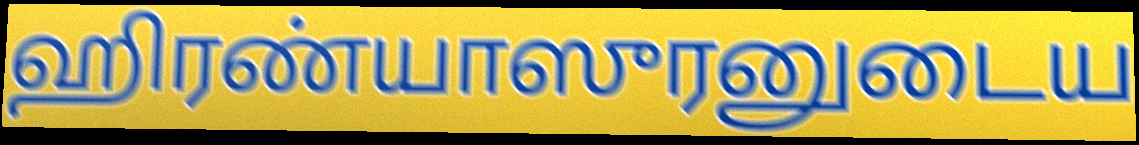
ஹிரண்யாஸுரனுடைய